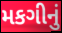
મકગીનું